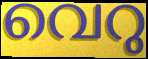
വെറു